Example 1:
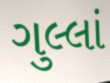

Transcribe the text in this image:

ગુલ્લાં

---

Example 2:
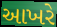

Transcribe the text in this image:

આખરે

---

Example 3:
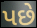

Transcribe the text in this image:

પછે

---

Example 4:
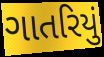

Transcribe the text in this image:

ગાતરિયું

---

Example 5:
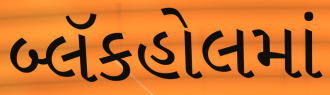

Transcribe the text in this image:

બ્લૅકહોલમાં